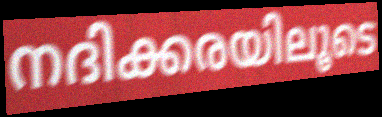
നദിക്കരയിലൂടെ